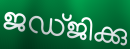
ജഡ്ജിക്കു